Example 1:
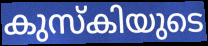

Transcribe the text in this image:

കുസ്കിയുടെ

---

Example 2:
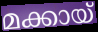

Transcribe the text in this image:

മക്കായ്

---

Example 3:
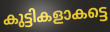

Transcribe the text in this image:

കുട്ടികളാകട്ടെ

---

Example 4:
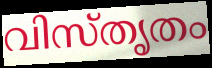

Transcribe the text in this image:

വിസ്തൃതം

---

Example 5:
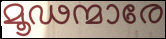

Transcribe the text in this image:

മൂഢന്മാരേ